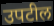
उपटील